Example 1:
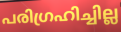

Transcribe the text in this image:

പരിഗ്രഹിച്ചില്ല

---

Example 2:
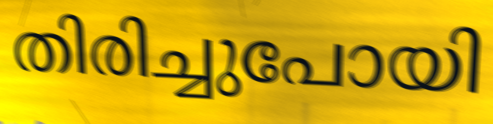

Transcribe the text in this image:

തിരിച്ചുപോയി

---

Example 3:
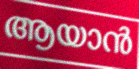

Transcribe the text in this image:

ആയാൻ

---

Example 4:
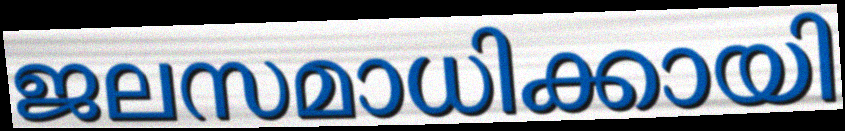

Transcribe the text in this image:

ജലസമാധിക്കായി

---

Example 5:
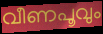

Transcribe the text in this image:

വീണപൂവും